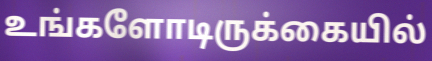
உங்களோடிருக்கையில்